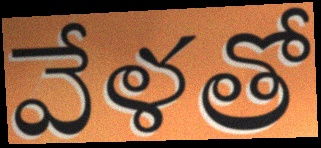
వేళతో